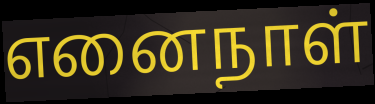
எனைநாள்